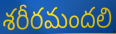
శరీరమందలి